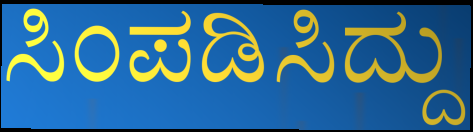
ಸಿಂಪಡಿಸಿದ್ದು